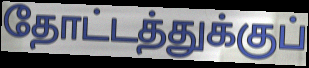
தோட்டத்துக்குப்